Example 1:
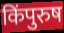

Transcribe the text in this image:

किंपुरुष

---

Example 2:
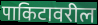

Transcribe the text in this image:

पाकिटावरील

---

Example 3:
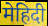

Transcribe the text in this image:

मेहिदी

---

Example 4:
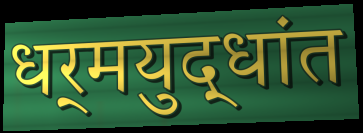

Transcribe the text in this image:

धर्मयुद्धांत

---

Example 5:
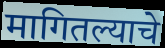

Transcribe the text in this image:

मागितल्याचे